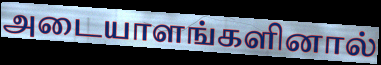
அடையாளங்களினால்